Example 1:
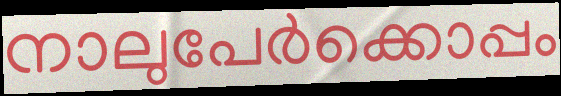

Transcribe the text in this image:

നാലുപേർക്കൊപ്പം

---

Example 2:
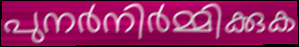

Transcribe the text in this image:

പുനർനിർമ്മിക്കുക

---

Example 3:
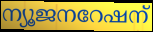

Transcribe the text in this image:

ന്യൂജനറേഷന്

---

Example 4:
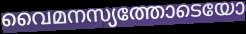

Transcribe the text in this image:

വൈമനസ്യത്തോടെയോ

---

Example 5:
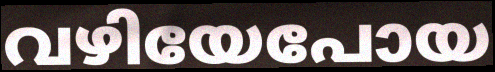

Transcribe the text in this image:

വഴിയേപോയ